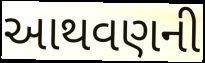
આથવણની